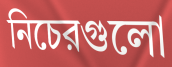
নিচেরগুলো